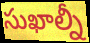
సుఖాల్నీ